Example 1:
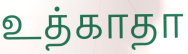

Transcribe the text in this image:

உத்காதா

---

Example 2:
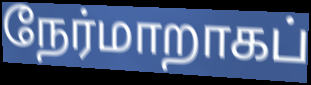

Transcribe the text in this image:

நேர்மாறாகப்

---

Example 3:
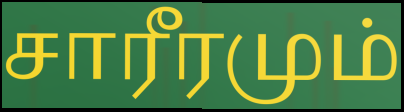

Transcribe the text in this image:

சாரீரமும்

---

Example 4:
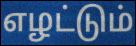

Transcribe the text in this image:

எழட்டும்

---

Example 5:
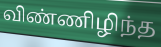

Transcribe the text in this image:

விண்ணிழிந்த